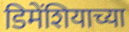
डिमेंशियाच्या